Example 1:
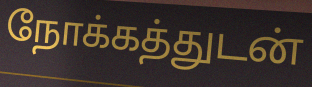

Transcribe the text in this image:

நோக்கத்துடன்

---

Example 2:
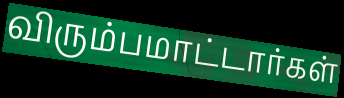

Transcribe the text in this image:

விரும்பமாட்டார்கள்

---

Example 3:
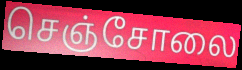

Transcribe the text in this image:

செஞ்சோலை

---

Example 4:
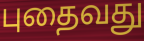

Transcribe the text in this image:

புதைவது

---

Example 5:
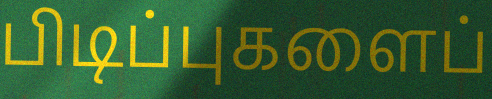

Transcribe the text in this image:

பிடிப்புகளைப்